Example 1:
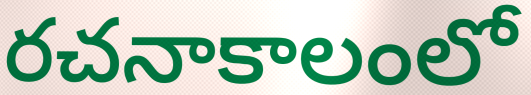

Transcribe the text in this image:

రచనాకాలంలో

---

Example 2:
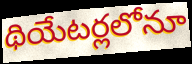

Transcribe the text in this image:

థియేటర్లలోనూ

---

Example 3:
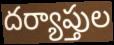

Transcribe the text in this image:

దర్యాప్తుల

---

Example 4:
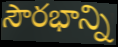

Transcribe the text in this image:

సౌరభాన్ని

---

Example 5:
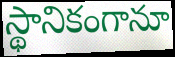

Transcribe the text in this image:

స్థానికంగానూ